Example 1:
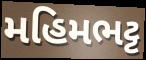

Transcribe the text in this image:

મહિમભટ્ટ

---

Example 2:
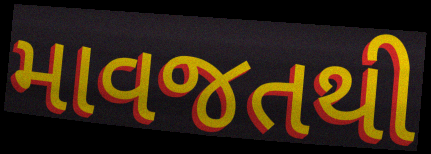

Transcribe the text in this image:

માવજતથી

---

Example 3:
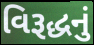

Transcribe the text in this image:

વિરૂદ્ધનું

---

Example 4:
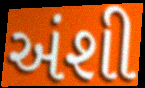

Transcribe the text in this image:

અંશી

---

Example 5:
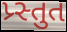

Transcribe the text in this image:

પ્ર્સ્તુત